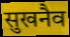
सुखनैव